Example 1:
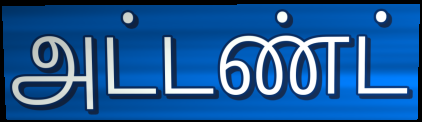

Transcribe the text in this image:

அட்டண்ட்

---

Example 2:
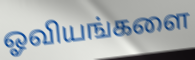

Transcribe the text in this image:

ஓவியங்களை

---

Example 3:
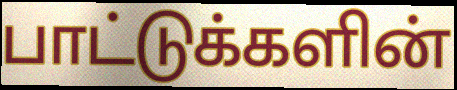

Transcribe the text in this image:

பாட்டுக்களின்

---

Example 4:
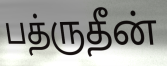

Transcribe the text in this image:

பத்ருதீன்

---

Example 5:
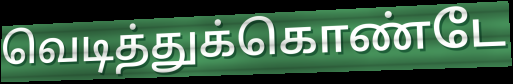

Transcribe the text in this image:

வெடித்துக்கொண்டே